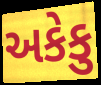
અકેકુ